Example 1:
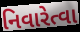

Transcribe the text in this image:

નિવારેત્વા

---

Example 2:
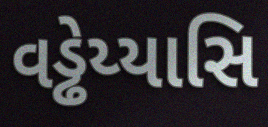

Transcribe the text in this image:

વડ્ઢેય્યાસિ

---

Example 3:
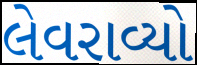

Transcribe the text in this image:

લેવરાવ્યો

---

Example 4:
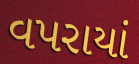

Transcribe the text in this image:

વપરાયાં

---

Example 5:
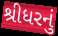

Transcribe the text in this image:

શ્રીધરનું